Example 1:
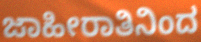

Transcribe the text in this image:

ಜಾಹೀರಾತಿನಿಂದ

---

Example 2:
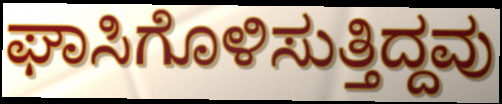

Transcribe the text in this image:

ಘಾಸಿಗೊಳಿಸುತ್ತಿದ್ದವು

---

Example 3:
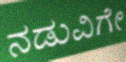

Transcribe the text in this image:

ನಡುವಿಗೇ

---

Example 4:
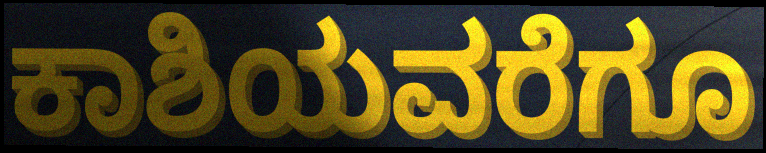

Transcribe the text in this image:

ಕಾಶಿಯವರೆಗೂ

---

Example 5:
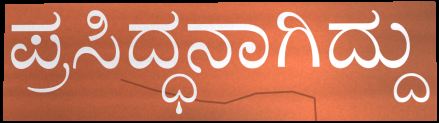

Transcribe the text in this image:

ಪ್ರಸಿದ್ಧನಾಗಿದ್ದು